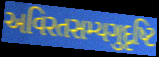
અવિરતસમ્યગુદૃષ્ટિ